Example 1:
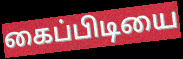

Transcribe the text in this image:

கைப்பிடியை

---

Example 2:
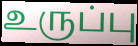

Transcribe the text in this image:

உருப்பு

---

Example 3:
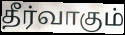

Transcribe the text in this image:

தீர்வாகும்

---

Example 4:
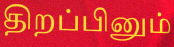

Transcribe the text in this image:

திறப்பினும்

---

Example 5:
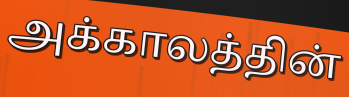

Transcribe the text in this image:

அக்காலத்தின்